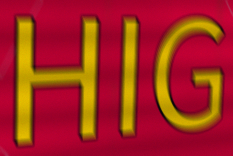
HIG